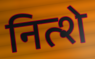
नित्शे